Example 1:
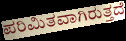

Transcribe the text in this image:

ಪರಿಮಿತವಾಗಿರುತ್ತದೆ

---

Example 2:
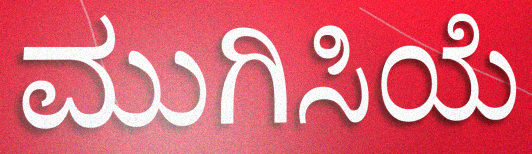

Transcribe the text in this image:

ಮುಗಿಸಿಯೆ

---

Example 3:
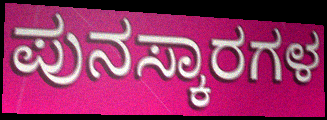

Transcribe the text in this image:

ಪುನಸ್ಕಾರಗಳ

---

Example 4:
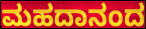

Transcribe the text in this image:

ಮಹದಾನಂದ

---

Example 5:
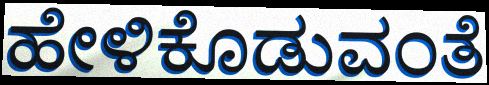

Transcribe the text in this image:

ಹೇಳಿಕೊಡುವಂತೆ